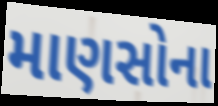
માણસોના